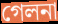
গেলনা